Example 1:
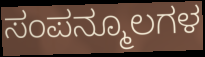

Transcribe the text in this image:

ಸಂಪನ್ಮೂಲಗಳ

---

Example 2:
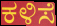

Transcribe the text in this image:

ಕಳಿಸೆ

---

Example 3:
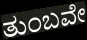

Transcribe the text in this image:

ತುಂಬವೇ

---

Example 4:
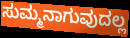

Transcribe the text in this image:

ಸುಮ್ಮನಾಗುವುದಲ್ಲ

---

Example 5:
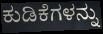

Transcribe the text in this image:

ಕುಡಿಕೆಗಳನ್ನು